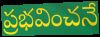
ప్రభవించనే